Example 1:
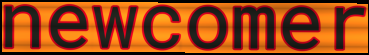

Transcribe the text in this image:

newcomer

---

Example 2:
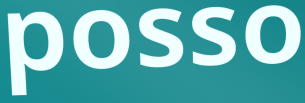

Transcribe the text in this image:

posso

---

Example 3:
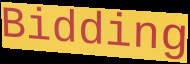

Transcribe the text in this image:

Bidding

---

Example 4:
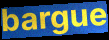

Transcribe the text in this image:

bargue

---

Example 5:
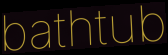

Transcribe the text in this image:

bathtub